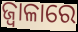
ଜ୍ୱାଳାରେ